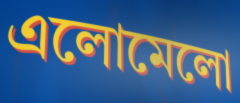
এলোমেলো